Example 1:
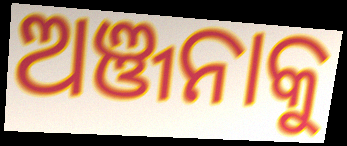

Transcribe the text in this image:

ଅଞ୍ଜନାକୁ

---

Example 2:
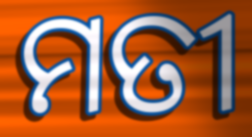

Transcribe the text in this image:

ମତୀ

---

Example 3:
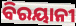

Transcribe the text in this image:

ବିରୟାନୀ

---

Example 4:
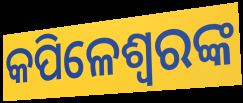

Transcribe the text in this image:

କପିଳେଶ୍ବରଙ୍କ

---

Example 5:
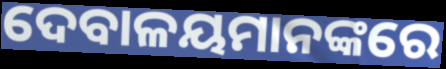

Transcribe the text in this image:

ଦେବାଳୟମାନଙ୍କରେ